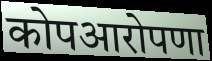
कोपआरोपणा